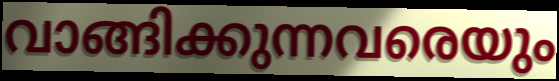
വാങ്ങിക്കുന്നവരെയും